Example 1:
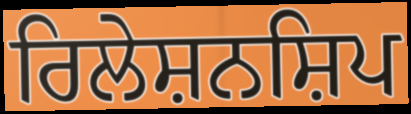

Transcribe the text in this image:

ਰਿਲੇਸ਼ਨਸ਼ਿਪ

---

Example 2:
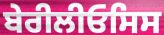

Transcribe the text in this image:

ਬੇਰੀਲੀਓਸਿਸ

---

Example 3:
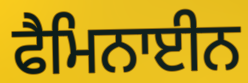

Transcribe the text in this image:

ਫੈਮਿਨਾਈਨ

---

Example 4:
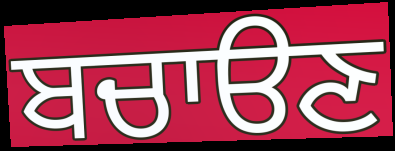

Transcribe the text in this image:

ਬਚਾੳਣ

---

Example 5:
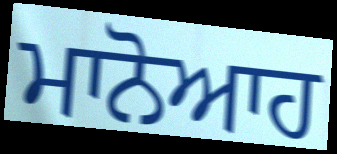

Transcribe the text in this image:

ਮਾਨੋਆਹ